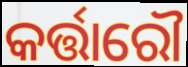
କର୍ତ୍ତାରୌ